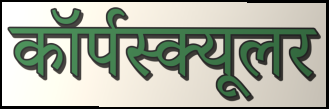
कॉर्पस्क्यूलर